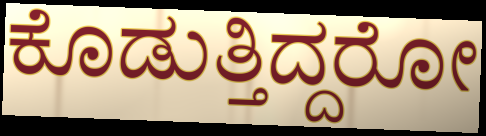
ಕೊಡುತ್ತಿದ್ದರೋ